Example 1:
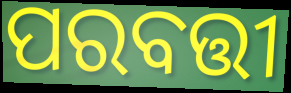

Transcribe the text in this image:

ପରବତ୍ତୀ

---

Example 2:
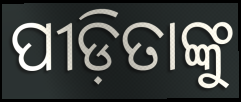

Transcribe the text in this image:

ପୀଡ଼ିତାଙ୍କୁ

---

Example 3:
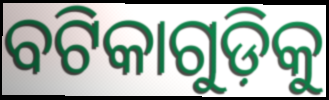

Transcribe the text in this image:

ବଟିକାଗୁଡ଼ିକୁ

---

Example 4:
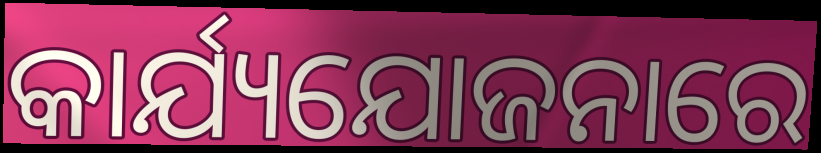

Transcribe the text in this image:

କାର୍ଯ୍ୟଯୋଜନାରେ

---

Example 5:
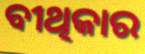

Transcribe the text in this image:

ବୀଥିକାର